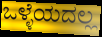
ಒಳ್ಳೆಯದಲ್ಲ